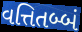
વત્તિતબ્બં